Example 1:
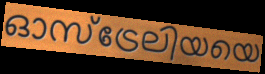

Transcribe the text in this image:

ഓസ്ട്രേലിയയെ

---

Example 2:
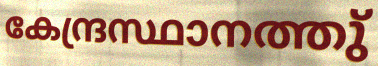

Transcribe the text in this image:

കേന്ദ്രസ്ഥാനത്തു്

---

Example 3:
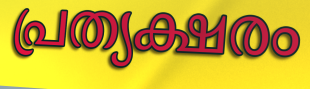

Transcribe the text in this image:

പ്രത്യക്ഷരം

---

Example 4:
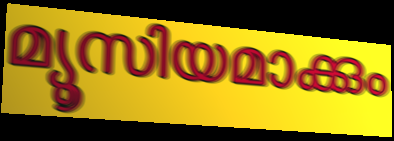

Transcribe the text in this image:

മ്യൂസിയമാക്കും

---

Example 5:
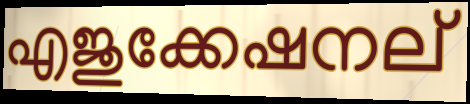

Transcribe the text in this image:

എജുക്കേഷനല്